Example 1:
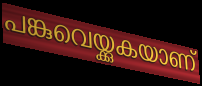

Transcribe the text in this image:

പങ്കുവെയ്ക്കുകയാണ്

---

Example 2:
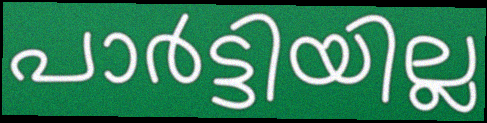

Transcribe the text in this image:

പാർട്ടിയില്ല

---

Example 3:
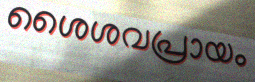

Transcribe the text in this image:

ശൈശവപ്രായം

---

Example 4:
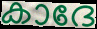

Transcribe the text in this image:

കാദേ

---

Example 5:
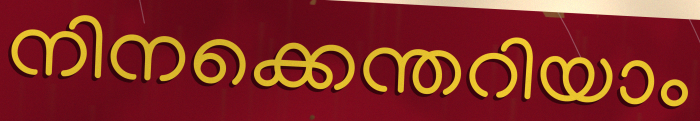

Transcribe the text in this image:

നിനക്കെന്തറിയാം